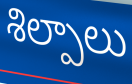
శిల్పాలు